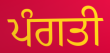
ਪੰਗਤੀ